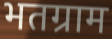
भतग्राम